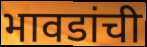
भावडांची